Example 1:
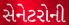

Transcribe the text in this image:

સેનેટરોની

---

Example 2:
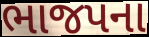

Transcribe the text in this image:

ભાજપના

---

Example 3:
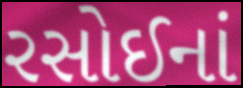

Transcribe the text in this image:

રસોઈનાં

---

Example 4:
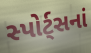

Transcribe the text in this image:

સ્પોર્ટ્સનાં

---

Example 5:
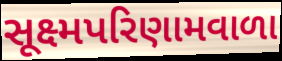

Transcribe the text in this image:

સૂક્ષ્મપરિણામવાળા